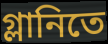
গ্লানিতে